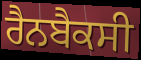
ਰੈਨਬੈਕਸੀ